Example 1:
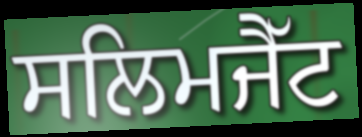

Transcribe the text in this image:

ਸਲਿਮਜੈੱਟ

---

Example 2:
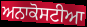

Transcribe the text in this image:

ਅਨਾਕੋਸਟੀਆ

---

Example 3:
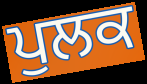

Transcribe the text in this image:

ਪੁਲਕ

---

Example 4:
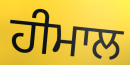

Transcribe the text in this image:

ਹੀਮਾਲ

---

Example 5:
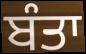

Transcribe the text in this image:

ਬੰਤਾ